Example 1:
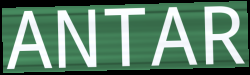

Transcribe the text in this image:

ANTAR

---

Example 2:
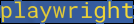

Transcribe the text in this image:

playwright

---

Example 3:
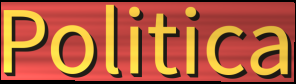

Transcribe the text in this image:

Politica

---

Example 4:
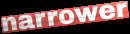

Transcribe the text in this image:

narrower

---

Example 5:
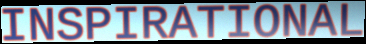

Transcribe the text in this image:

INSPIRATIONAL